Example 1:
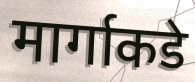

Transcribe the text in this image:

मार्गाकडे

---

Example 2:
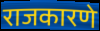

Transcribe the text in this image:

राजकारणे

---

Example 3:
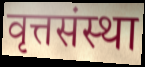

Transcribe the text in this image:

वृत्तसंस्था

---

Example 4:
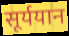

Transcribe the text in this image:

सूर्ययान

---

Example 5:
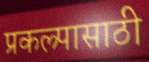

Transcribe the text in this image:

प्रकल्पासाठी